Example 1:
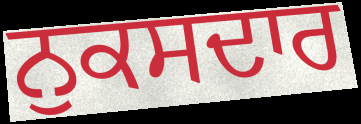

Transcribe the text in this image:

ਨੁਕਸਦਾਰ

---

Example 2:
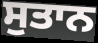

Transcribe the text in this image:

ਸੁਤਾਨ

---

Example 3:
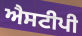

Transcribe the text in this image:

ਐਸਟੀਪੀ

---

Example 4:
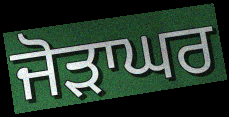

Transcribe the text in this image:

ਜੋੜਾਘਰ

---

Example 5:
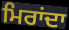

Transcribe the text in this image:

ਮਿਰਾਂਦਾ